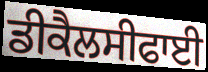
ਡੀਕੈਲਸੀਫਾਈ